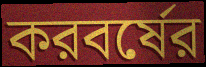
করবর্ষের